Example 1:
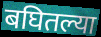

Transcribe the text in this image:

बघितल्या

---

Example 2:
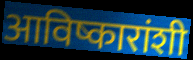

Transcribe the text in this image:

आविष्कारांशी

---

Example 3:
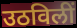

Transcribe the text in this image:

उठविलीं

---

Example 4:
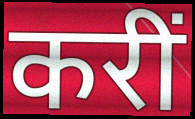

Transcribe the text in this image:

करीं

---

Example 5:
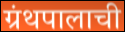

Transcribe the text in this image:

ग्रंथपालाची